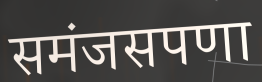
समंजसपणा